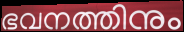
ഭവനത്തിനും